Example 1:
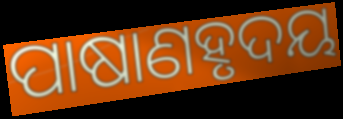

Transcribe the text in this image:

ପାଷାଣହୃଦୟ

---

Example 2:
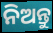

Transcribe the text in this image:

ନିଅନ୍ତୁ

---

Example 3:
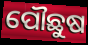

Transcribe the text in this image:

ପୌଛୁଷ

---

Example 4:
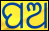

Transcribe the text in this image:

ପଅ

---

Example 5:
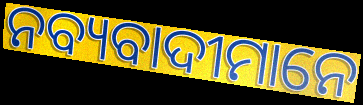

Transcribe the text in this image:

ନବ୍ୟବାଦୀମାନେ